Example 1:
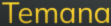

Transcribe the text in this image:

Temana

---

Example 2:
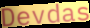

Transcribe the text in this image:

Devdas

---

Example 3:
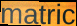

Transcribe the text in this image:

matric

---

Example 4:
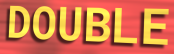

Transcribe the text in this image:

DOUBLE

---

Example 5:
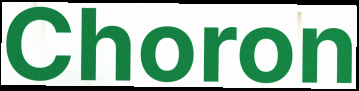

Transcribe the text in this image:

Choron